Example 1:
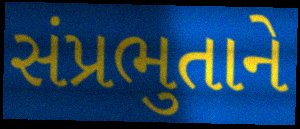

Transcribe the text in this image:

સંપ્રભુતાને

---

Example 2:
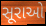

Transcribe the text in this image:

સૂરાઓ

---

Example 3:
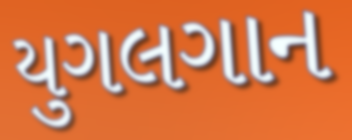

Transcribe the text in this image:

યુગલગાન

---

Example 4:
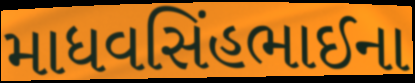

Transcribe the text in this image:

માધવસિંહભાઈના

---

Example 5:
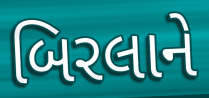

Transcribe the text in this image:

બિરલાને